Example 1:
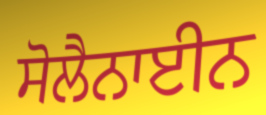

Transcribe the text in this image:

ਸੋਲੈਨਾਈਨ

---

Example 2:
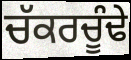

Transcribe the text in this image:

ਚੱਕਰਚੂੰਢੇ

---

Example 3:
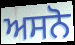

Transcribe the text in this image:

ਅਸਨੋ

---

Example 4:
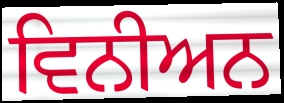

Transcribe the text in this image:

ਵਿਨੀਅਨ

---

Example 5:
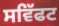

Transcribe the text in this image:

ਸਵਿੱਫਟ